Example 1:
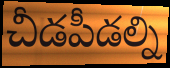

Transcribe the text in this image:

చీడపీడల్ని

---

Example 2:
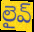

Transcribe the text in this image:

లైవ్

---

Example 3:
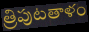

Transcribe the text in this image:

త్రిపుటతాళం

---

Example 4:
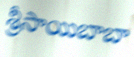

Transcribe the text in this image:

శ్రీసాయిబాబా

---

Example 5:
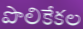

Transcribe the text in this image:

పొలికేకల